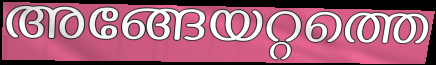
അങ്ങേയറ്റത്തെ